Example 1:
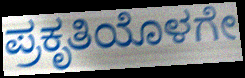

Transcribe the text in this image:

ಪ್ರಕೃತಿಯೊಳಗೇ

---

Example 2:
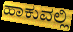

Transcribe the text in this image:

ಹಾಕುವಲ್ಲಿ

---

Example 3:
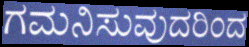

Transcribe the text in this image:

ಗಮನಿಸುವುದರಿಂದ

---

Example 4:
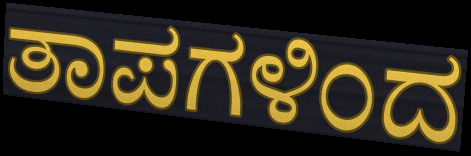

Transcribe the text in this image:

ತಾಪಗಳಿಂದ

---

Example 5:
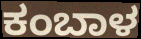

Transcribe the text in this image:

ಕಂಬಾಳ